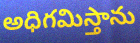
అధిగమిస్తాను